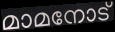
മാമനോട്